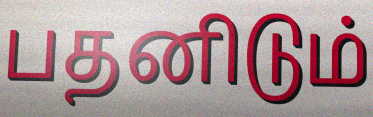
பதனிடும்